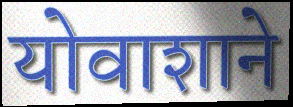
योवाशाने